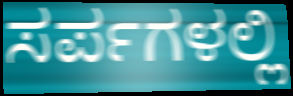
ಸರ್ಪಗಳಲ್ಲಿ